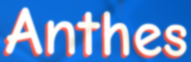
Anthes